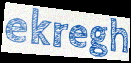
ekregh